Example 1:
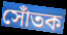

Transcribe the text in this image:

সোঁতক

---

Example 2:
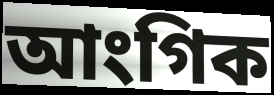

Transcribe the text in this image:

আংগিক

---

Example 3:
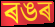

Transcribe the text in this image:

ৰঙৰ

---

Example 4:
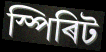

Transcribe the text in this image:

স্পিৰিট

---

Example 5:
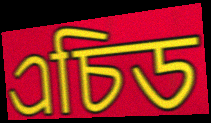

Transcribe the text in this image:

এচিড